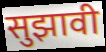
सुझावी